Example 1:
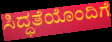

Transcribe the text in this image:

ಸಿದ್ಧತೆಯೊಂದಿಗೆ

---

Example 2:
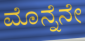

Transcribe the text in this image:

ಮೊನ್ನೆನೇ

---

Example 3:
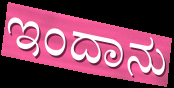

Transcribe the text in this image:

ಇಂದಾನು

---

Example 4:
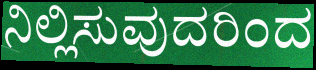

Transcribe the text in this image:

ನಿಲ್ಲಿಸುವುದರಿಂದ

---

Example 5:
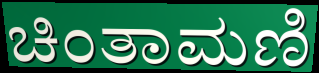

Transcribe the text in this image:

ಚಿಂತಾಮಣಿ